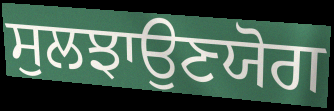
ਸੁਲਝਾਉਣਯੋਗ